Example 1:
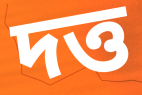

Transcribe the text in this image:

দত্ত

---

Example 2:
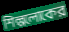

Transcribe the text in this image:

শিল্পলোকের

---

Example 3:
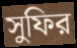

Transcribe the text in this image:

সুফির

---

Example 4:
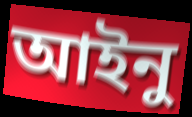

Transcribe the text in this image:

আইনু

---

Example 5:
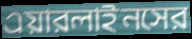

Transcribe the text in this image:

এয়ারলাইনসের